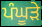
ਪੰਘੂੜੇ